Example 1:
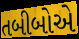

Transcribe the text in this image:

તબીબોએ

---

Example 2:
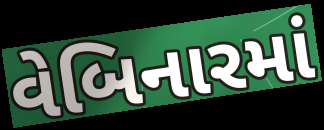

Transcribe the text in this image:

વેબિનારમાં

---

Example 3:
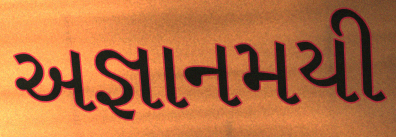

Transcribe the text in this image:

અજ્ઞાનમયી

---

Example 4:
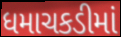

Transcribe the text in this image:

ધમાચકડીમાં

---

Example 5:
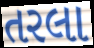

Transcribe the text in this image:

તરલા